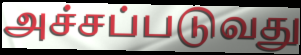
அச்சப்படுவது